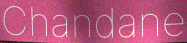
Chandane